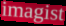
imagist